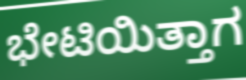
ಭೇಟಿಯಿತ್ತಾಗ